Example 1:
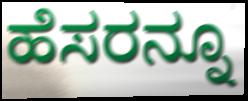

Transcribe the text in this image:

ಹೆಸರನ್ನೂ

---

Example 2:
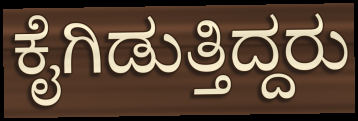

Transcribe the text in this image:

ಕೈಗಿಡುತ್ತಿದ್ದರು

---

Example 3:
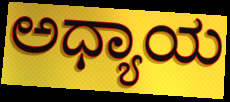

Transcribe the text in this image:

ಅಧ್ಯಾಯ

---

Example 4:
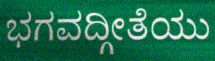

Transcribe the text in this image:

ಭಗವದ್ಗೀತೆಯು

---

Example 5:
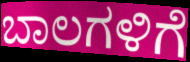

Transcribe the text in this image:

ಬಾಲಗಳಿಗೆ